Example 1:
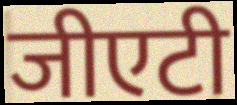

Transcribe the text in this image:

जीएटी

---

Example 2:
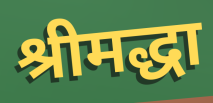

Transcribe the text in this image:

श्रीमद्धा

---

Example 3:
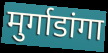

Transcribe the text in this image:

मुर्गाडांगा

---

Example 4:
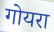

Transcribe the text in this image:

गोयरा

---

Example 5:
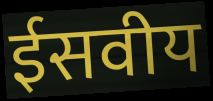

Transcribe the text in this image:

ईसवीय